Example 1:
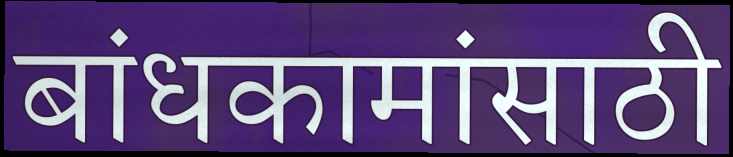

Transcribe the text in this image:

बांधकामांसाठी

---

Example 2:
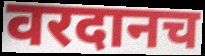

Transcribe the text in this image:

वरदानच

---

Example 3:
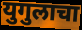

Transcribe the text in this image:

युगुलाचा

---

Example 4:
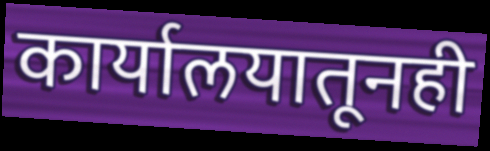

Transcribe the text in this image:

कार्यालयातूनही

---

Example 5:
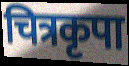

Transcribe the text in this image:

चित्रकृपा